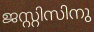
ജസ്റ്റിസിനു